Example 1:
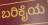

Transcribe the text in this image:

ಬರಿಕೈಯ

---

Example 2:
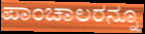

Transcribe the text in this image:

ಪಾಂಚಾಲರನ್ನೂ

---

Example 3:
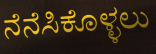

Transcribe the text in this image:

ನೆನೆಸಿಕೊಳ್ಳಲು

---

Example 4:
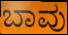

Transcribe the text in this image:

ಬಾವು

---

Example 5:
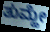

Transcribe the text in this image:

ತುಮ್ಹೇ